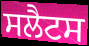
ਸਲੈਟਸ